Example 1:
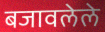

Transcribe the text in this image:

बजावलेले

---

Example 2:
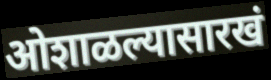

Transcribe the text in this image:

ओशाळल्यासारखं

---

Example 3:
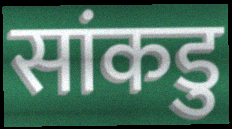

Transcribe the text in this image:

सांकडु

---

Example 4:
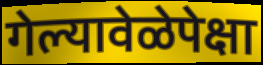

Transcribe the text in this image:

गेल्यावेळेपेक्षा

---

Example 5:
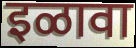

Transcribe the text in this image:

इळावा